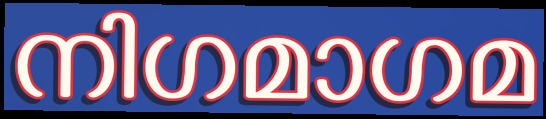
നിഗമാഗമ